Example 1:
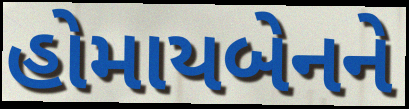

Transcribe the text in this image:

હોમાયબેનને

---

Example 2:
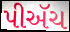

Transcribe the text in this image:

પીઍચ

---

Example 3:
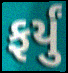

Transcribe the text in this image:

ફર્યું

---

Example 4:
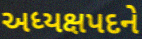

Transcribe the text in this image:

અધ્યક્ષપદને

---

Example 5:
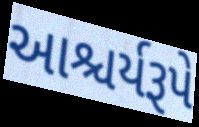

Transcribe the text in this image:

આશ્ચર્યરૂપે